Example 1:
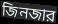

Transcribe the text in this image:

জিনজার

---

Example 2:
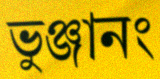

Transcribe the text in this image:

ভুঞ্জানং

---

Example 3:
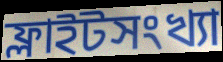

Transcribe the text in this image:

ফ্লাইটসংখ্যা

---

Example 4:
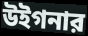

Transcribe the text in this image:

উইগনার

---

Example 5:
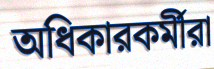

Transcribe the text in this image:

অধিকারকর্মীরা